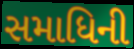
સમાધિની